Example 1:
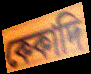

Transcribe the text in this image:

কেকাদি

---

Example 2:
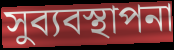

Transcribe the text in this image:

সুব্যবস্থাপনা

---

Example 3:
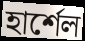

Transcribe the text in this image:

হার্শেল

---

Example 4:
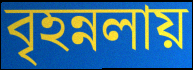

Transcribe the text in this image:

বৃহন্নলায়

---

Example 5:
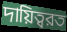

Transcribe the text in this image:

দায়িত্বরত